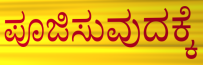
ಪೂಜಿಸುವುದಕ್ಕೆ